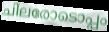
ചിലരോടൊപ്പം